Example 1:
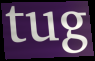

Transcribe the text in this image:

tug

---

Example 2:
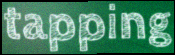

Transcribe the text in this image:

tapping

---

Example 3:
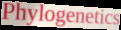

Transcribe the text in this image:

Phylogenetics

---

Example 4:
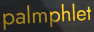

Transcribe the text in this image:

palmphlet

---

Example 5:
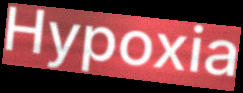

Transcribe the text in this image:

Hypoxia